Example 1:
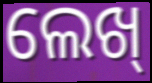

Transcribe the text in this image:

ଲେଖ୍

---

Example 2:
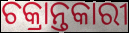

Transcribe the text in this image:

ଚକ୍ରାନ୍ତକାରୀ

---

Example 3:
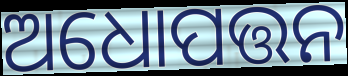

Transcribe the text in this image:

ଅଧୋପତ୍ତନ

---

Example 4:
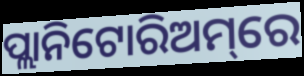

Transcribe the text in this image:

ପ୍ଲାନିଟୋରିଅମ୍‌ରେ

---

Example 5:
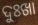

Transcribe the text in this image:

ଦୁଃଖା